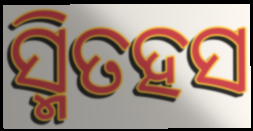
ସ୍ମିତହସ